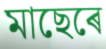
মাছেৰে